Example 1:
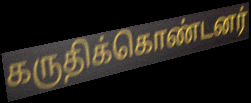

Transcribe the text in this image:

கருதிக்கொண்டனர்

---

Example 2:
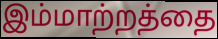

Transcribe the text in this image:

இம்மாற்றத்தை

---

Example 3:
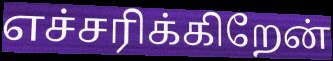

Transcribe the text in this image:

எச்சரிக்கிறேன்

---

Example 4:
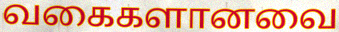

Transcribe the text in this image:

வகைகளானவை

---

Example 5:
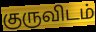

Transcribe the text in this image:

குருவிடம்